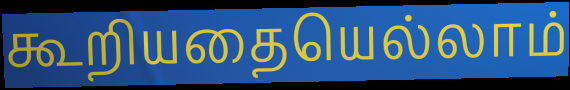
கூறியதையெல்லாம்